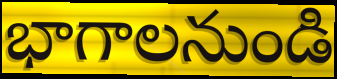
భాగాలనుండి